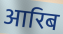
आरिब